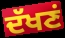
ਦੱਖਣਂ